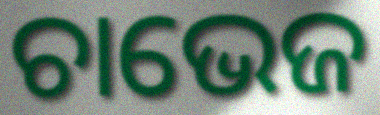
ଚାଭେଜ